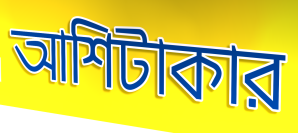
আশিটাকার